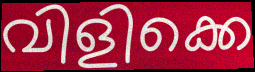
വിളിക്കെ